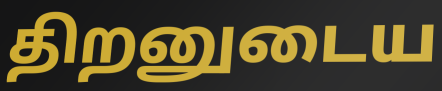
திறனுடைய